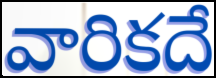
వారికదే